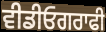
ਵੀਡੀਓਗਰਾਫੀ